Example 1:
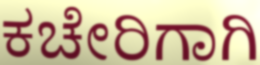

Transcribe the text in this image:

ಕಚೇರಿಗಾಗಿ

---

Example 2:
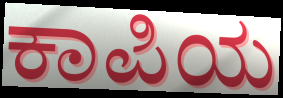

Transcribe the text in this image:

ಕಾಪಿಯ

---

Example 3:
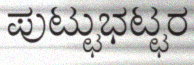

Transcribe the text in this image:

ಪುಟ್ಟುಭಟ್ಟರ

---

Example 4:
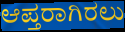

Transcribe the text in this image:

ಆಪ್ತರಾಗಿರಲು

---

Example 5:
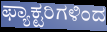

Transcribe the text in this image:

ಫ್ಯಾಕ್ಟರಿಗಳಿಂದ